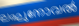
ലഘുനോവൽ